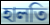
হালতি